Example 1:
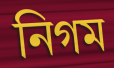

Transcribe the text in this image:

নিগম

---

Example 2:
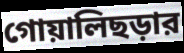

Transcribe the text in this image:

গোয়ালিছড়ার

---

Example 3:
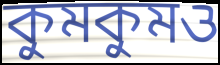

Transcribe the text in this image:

কুমকুমও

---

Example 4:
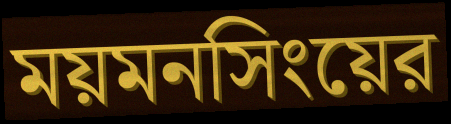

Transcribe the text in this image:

ময়মনসিংয়ের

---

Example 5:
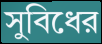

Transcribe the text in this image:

সুবিধের